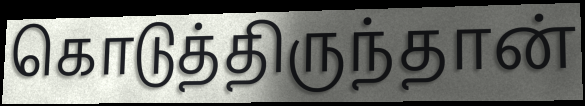
கொடுத்திருந்தான்